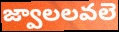
జ్వాలలవలె